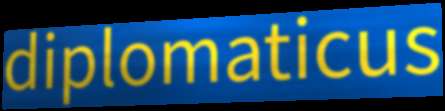
diplomaticus